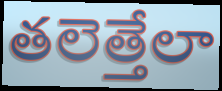
తలెత్తేలా